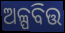
ଅଳ୍ପବିତ୍ତ